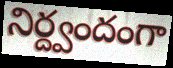
నిర్ద్వందంగా